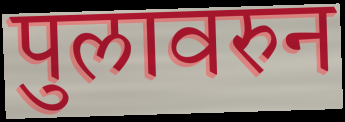
पुलावरुन